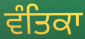
ਵੰਤਿਕਾ